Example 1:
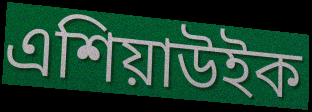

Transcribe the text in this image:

এশিয়াউইক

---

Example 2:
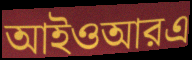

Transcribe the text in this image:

আইওআরএ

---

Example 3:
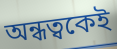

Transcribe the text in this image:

অন্ধত্বকেই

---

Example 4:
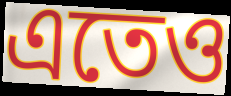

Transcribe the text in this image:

এতেও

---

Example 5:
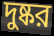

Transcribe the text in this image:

দুষ্কর